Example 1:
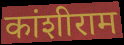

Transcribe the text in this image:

कांशीराम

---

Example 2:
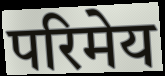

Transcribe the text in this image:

परिमेय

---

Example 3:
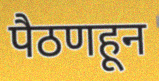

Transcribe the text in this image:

पैठणहून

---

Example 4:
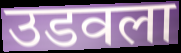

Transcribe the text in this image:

उडवला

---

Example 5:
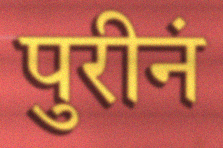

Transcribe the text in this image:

पुरीनं